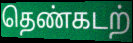
தெண்கடற்